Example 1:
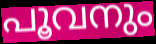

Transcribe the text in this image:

പൂവനും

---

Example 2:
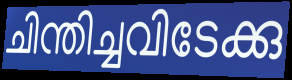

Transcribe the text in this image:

ചിന്തിച്ചവിടേക്കു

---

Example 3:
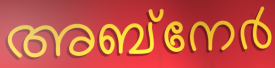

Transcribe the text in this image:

അബ്നേർ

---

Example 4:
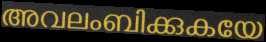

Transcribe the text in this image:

അവലംബിക്കുകയേ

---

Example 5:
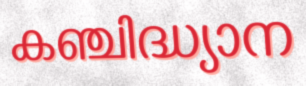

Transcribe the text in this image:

കഞ്ചിദ്ധ്യാന